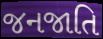
જનજાતિ